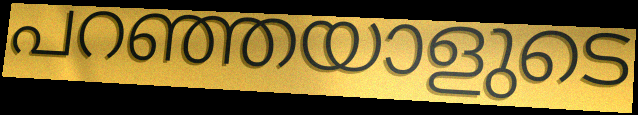
പറഞ്ഞയാളുടെ